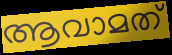
ആവാമത്